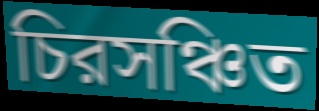
চিরসঞ্চিত